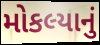
મોકલ્યાનું